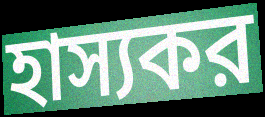
হাস্যকর